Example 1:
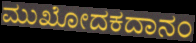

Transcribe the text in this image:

ಮುಖೋದಕದಾನಂ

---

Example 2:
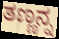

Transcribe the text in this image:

ತಣ್ಣನ್ನ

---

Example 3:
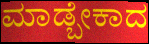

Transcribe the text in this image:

ಮಾಡ್ಬೇಕಾದ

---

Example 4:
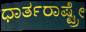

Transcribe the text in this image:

ಧಾರ್ತರಾಷ್ಟ್ರೇ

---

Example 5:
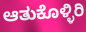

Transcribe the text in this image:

ಆತುಕೊಳ್ಳಿರಿ